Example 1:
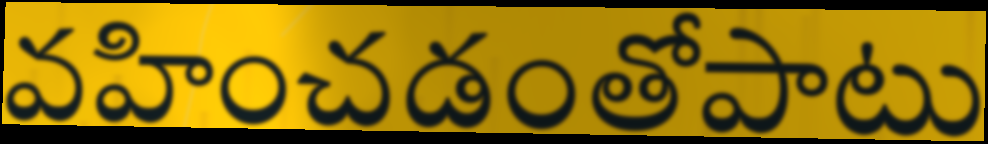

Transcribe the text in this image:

వహించడంతోపాటు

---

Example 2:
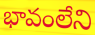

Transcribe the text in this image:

భావంలేని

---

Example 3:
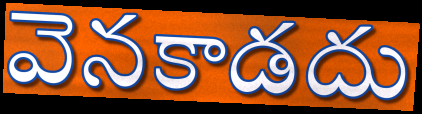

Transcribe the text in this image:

వెనకాడదు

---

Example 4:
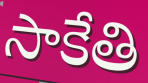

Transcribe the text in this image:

సాకేతి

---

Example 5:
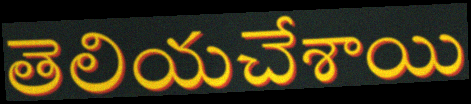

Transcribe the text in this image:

తెలియచేశాయి